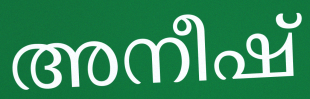
അനീഷ്